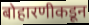
बोहारणीकडून